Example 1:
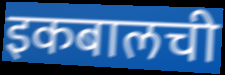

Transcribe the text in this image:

इकबालची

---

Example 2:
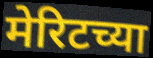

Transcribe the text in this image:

मेरिटच्या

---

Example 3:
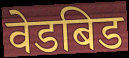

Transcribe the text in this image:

वेडबिड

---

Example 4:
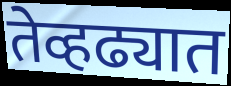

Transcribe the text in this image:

तेव्हढ्यात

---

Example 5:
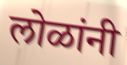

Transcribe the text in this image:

लोळांनी